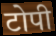
टोपी